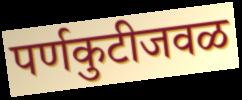
पर्णकुटीजवळ